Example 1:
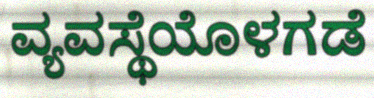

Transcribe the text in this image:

ವ್ಯವಸ್ಥೆಯೊಳಗಡೆ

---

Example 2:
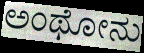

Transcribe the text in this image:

ಅಂಥೋನು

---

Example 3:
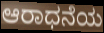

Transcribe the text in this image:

ಆರಾಧನೆಯ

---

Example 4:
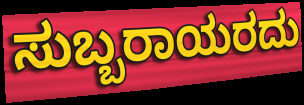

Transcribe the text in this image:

ಸುಬ್ಬರಾಯರದು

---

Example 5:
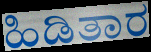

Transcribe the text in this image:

ಹಿಡಿತಾರ